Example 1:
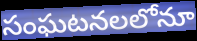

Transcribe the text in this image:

సంఘటనలలోనూ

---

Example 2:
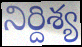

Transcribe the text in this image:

నిర్దిశ్య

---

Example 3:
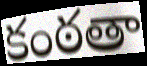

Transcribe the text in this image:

కంఠతా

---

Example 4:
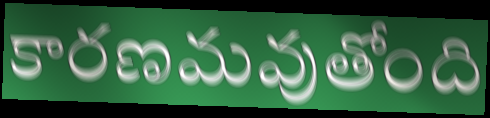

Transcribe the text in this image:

కారణమవుతోంది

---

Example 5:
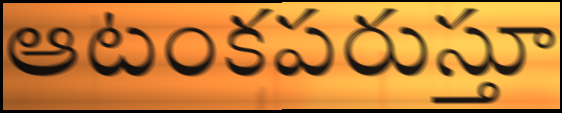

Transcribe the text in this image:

ఆటంకపరుస్తూ